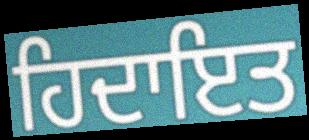
ਹਿਦਾਇਤ